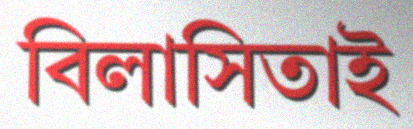
বিলাসিতাই